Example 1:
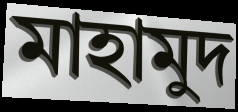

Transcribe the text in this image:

মাহামুদ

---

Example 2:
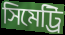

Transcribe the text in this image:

সিমেট্রি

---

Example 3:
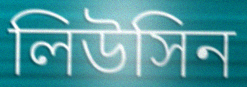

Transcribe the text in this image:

লিউসিন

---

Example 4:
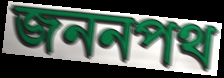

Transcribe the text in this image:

জননপথ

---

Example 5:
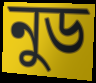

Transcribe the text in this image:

নুড